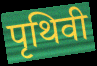
पृथिवी